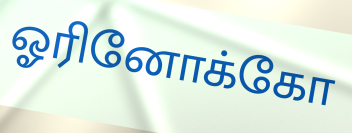
ஓரினோக்கோ